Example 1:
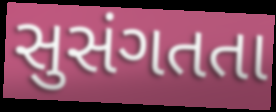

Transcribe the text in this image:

સુસંગતતા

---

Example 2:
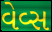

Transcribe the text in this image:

વેવ્સ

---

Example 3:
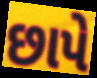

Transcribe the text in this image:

છાપે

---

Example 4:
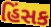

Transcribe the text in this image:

હિંસક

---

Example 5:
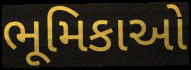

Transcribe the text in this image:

ભૂમિકાઓ